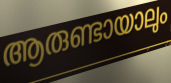
ആരുണ്ടായാലും